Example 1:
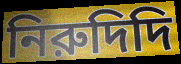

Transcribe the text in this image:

নিরুদিদি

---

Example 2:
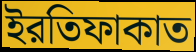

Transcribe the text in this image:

ইরতিফাকাত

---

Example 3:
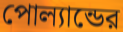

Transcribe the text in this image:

পোল্যান্ডের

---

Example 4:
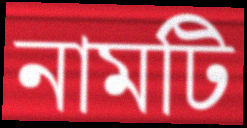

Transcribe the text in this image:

নামটি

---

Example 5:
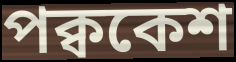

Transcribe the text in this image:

পক্বকেশ